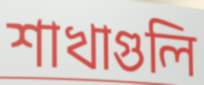
শাখাগুলি